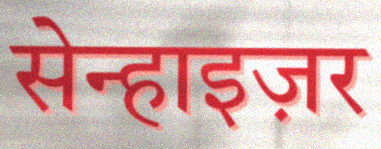
सेन्हाइज़र